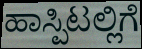
ಹಾಸ್ಪಿಟಲ್ಲಿಗೆ